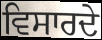
ਵਿਸਾਰਦੇ